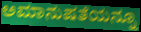
ಅಮಾನುಷತೆಯನ್ನೂ